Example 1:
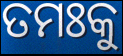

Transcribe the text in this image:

ତମଃକୁ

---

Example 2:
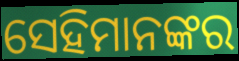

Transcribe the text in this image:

ସେହିମାନଙ୍କର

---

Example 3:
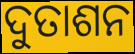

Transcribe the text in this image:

ଦୁତାଶନ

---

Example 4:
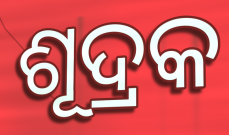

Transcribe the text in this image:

ଶୂଦ୍ରକ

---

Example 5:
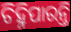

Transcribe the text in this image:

ଚିହ୍ନିପାରନ୍ତି